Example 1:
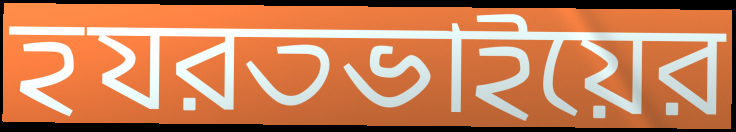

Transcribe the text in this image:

হযরতভাইয়ের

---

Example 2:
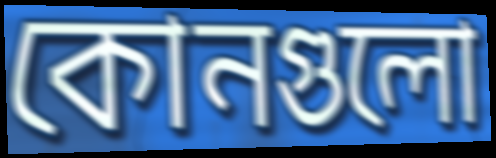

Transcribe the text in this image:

কোনগুলো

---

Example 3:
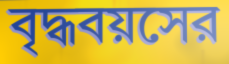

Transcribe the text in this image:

বৃদ্ধবয়সের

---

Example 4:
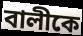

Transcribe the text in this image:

বালীকে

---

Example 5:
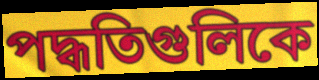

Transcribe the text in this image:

পদ্ধতিগুলিকে